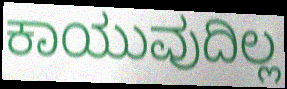
ಕಾಯುವುದಿಲ್ಲ